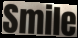
Smile